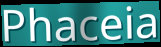
Phaceia